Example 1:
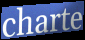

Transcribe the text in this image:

charte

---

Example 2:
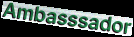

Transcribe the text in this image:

Ambasssador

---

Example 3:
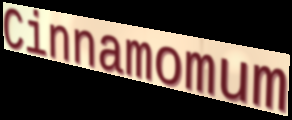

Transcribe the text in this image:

Cinnamomum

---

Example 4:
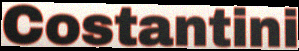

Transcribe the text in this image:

Costantini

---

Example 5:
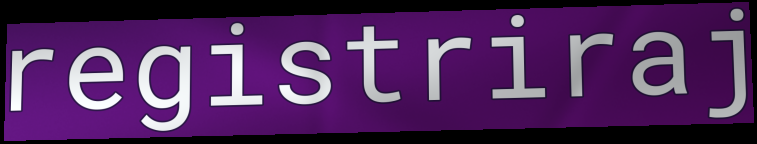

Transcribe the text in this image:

registriraj